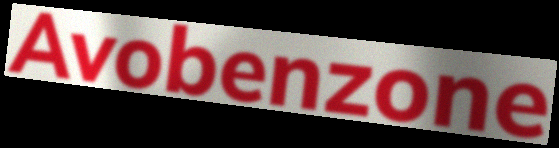
Avobenzone